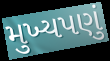
મુખ્યપણું